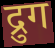
द्रुग